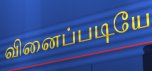
வினைப்படியே